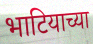
भाटियाच्या